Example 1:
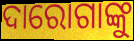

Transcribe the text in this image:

ଦାରୋଗାଙ୍କୁ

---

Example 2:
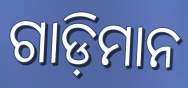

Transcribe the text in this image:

ଗାଡ଼ିମାନ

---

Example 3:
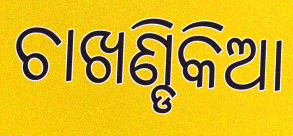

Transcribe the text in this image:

ଚାଖଣ୍ଡିକିଆ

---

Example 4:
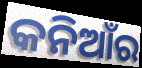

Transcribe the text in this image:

କନିଆଁର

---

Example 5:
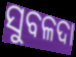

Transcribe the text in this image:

ସୁବଳଦା